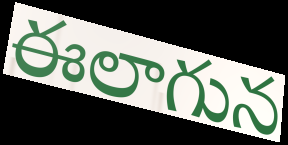
ఈలాగున